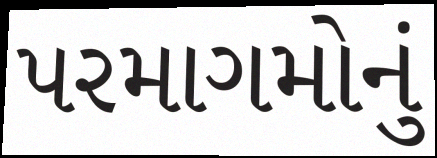
પરમાગમોનું